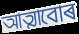
আত্মাবোৰ